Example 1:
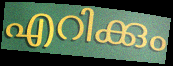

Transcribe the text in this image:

എറിക്കും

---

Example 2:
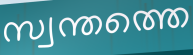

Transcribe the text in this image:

സ്വന്തത്തെ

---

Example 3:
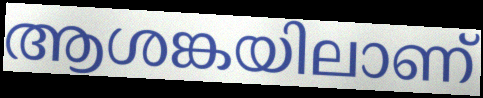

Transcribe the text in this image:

ആശങ്കയിലാണ്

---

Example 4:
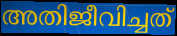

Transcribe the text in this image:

അതിജീവിച്ചത്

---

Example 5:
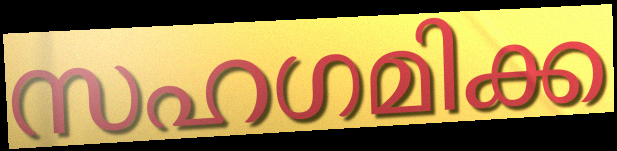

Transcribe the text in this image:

സഹഗമിക്ക